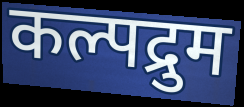
कल्पद्रुम